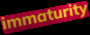
immaturity